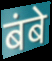
बंबे